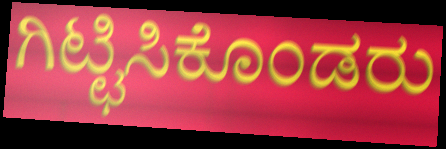
ಗಿಟ್ಟಿಸಿಕೊಂಡರು